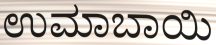
ಉಮಾಬಾಯಿ